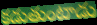
కడుతుంటాడు